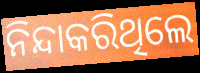
ନିନ୍ଦାକରିଥିଲେ